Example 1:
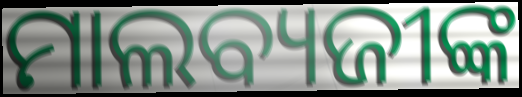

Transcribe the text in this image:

ମାଲବ୍ୟଜୀଙ୍କ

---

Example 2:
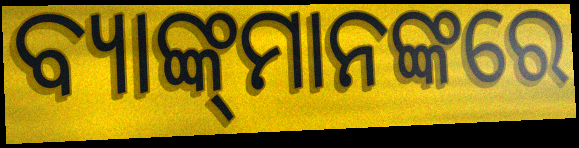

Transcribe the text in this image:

ବ୍ୟାଙ୍କ୍‌ମାନଙ୍କରେ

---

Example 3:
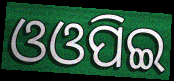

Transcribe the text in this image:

ଓଓପିଇ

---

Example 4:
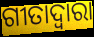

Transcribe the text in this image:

ଗୀତାଦ୍ଵାରା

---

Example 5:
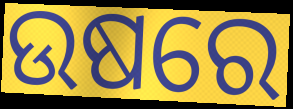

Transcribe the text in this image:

ଉଷରେ